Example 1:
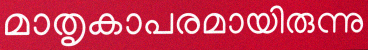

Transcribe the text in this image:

മാതൃകാപരമായിരുന്നു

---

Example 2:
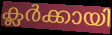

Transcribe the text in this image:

ക്ലർക്കായി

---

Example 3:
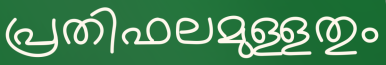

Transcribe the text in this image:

പ്രതിഫലമുള്ളതും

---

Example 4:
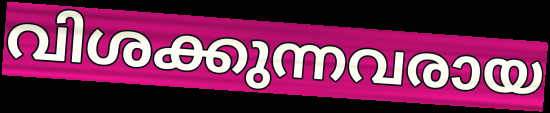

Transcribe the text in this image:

വിശക്കുന്നവരായ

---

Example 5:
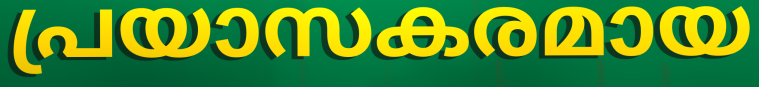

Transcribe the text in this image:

പ്രയാസകരമായ